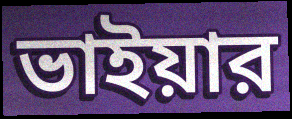
ভাইয়ার